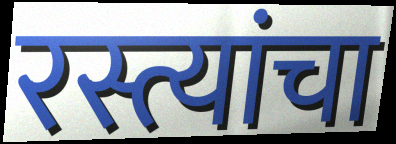
रस्त्यांचा